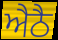
ਐਠੈ